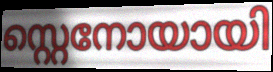
സ്റ്റെനോയായി